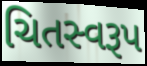
ચિતસ્વરૂપ